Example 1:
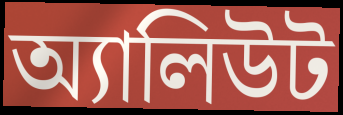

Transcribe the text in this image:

অ্যালিউট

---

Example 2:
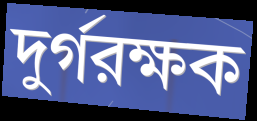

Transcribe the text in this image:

দুর্গরক্ষক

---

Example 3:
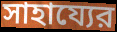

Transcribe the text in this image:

সাহায্যের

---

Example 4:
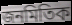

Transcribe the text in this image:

জনমিতিক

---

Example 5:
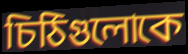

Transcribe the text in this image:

চিঠিগুলোকে